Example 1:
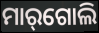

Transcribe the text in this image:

ମାର୍‌ଗୋଲି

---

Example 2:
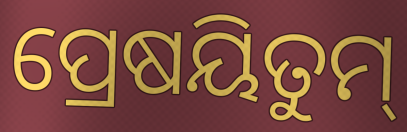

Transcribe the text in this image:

ପ୍ରେଷୟିତୁମ୍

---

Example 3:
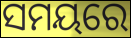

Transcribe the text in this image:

ସମୟରେ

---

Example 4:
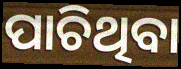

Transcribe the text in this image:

ପାଚିଥିବା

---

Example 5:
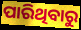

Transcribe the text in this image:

ପାରିଥିବାରୁ